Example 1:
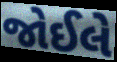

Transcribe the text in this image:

જોઈલે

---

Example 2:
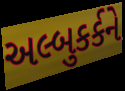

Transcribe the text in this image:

અલ્બુકર્કને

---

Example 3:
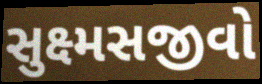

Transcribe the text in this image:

સુક્ષ્મસજીવો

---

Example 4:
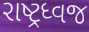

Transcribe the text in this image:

રાષ્ટ્રધ્વજ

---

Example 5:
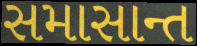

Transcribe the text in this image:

સમાસાન્ત